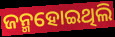
ଜନ୍ମହୋଇଥିଲି